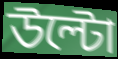
উল্টো